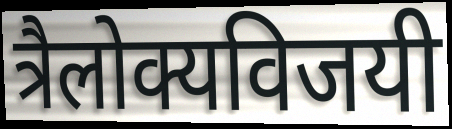
त्रैलोक्यविजयी